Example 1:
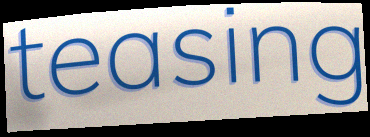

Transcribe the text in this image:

teasing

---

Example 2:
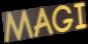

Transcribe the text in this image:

MAGI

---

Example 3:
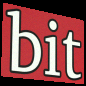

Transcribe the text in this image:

bit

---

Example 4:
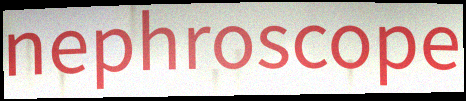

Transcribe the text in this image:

nephroscope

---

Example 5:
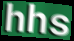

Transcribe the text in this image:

hhs